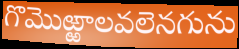
గొమొఱ్ఱాలవలెనగును